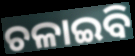
ଚଳାଇବି